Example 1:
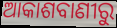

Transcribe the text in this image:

ଆକାଶବାଣୀରୁ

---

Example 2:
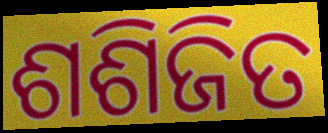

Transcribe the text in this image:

ଶଶିଜିତ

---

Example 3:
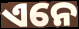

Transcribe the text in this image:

ଏନେ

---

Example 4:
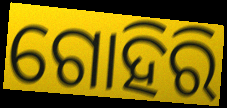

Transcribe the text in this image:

ଗୋହିରି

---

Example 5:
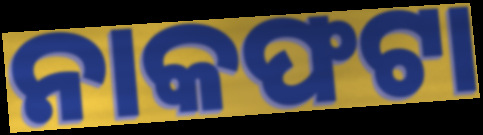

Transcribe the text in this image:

ନାକଫଟା